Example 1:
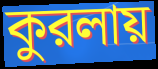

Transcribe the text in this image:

কুরলায়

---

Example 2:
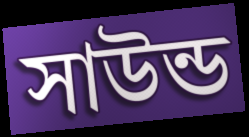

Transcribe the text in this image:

সাউন্ড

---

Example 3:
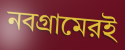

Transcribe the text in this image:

নবগ্রামেরই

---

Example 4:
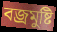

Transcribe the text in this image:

বজ্রমুষ্টি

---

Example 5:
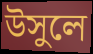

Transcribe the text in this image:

উসুলে